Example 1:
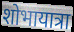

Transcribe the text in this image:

शोभायात्रा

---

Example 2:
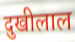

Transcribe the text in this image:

दुखीलाल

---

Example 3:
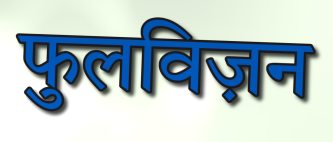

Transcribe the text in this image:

फुलविज़न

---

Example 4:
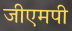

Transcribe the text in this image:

जीएमपी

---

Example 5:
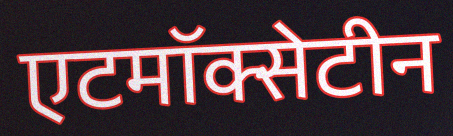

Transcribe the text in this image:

एटमॉक्सेटीन